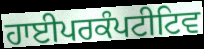
ਹਾਈਪਰਕੰਪਟੀਟਿਵ